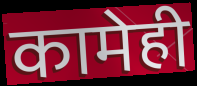
कामेही